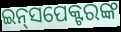
ଇନ୍‍ସପେକ୍ଟରଙ୍କ